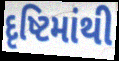
દૃષ્ટિમાંથી